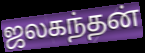
ஜலகந்தன்